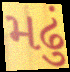
મઢું